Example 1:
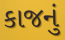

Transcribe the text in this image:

કાજનું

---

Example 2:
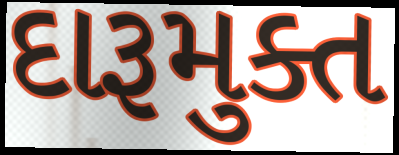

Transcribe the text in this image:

દારૂમુક્ત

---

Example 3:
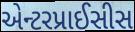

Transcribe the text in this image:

એન્ટરપ્રાઈસીસ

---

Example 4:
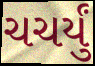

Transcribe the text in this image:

ચચર્યું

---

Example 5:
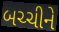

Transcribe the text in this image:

બચ્ચીને